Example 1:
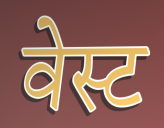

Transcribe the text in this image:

वेस्ट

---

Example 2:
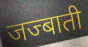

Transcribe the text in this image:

जज्बाती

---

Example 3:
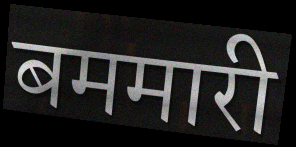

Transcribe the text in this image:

बममारी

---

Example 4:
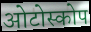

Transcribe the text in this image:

ओटोस्कोप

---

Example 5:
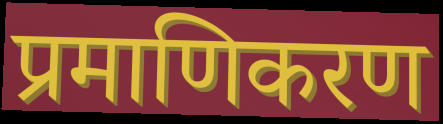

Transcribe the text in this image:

प्रमाणिकरण